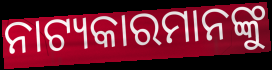
ନାଟ୍ଯକାରମାନଙ୍କୁ